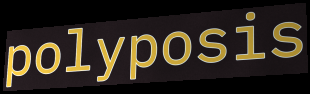
polyposis